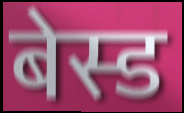
बेस्ड